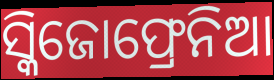
ସ୍କିଜୋଫ୍ରେନିଆ